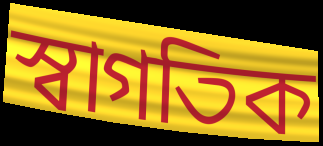
স্বাগতিক